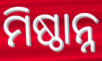
ମିଷ୍ଠାନ୍ନ